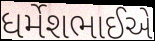
ધર્મેશભાઈએ